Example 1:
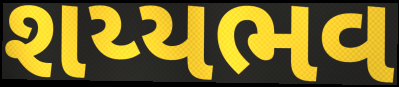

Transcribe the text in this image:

શય્યભવ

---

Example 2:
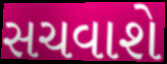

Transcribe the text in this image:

સચવાશે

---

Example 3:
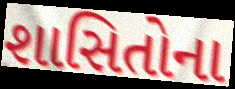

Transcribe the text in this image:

શાસિતોના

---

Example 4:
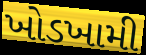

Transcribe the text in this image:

ખોડખામી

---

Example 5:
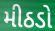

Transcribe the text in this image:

મીઠડો